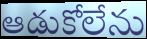
ఆడుకోలేను